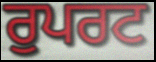
ਰੁਪਰਟ